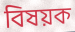
বিষয়ক